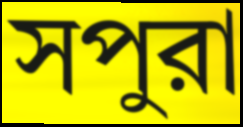
সপুরা